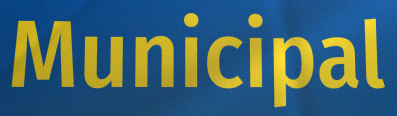
Municipal